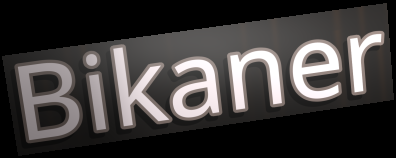
Bikaner